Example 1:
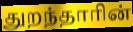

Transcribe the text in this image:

துறந்தாரின்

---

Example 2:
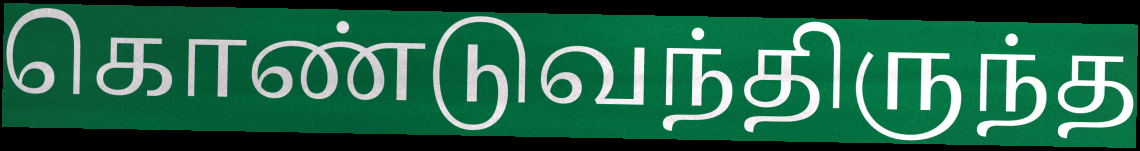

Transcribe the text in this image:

கொண்டுவந்திருந்த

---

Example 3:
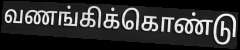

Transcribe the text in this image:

வணங்கிக்கொண்டு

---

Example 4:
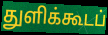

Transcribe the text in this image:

துளிக்கூடப்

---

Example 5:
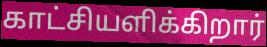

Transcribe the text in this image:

காட்சியளிக்கிறார்